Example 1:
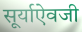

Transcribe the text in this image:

सूर्याऐवजी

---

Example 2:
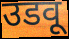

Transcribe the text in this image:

उडवू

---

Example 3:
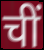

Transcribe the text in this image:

चीं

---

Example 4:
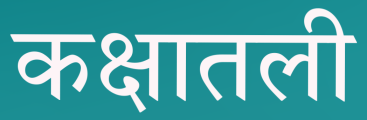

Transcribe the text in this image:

कक्षातली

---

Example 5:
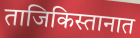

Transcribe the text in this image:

ताजिकिस्तानात